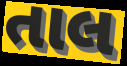
તાલ